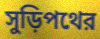
সুড়িপথের